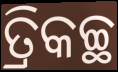
ତ୍ରିକଚ୍ଛ